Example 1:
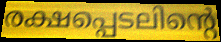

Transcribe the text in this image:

രക്ഷപ്പെടലിന്റെ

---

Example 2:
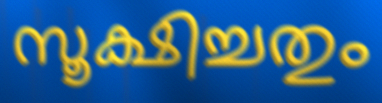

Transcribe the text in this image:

സൂക്ഷിച്ചതും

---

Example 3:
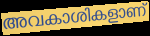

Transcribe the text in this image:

അവകാശികളാണ്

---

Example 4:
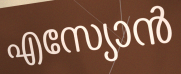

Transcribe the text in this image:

എസ്യോൻ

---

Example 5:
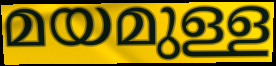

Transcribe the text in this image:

മയമുള്ള